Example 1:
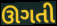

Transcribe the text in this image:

ઊગતી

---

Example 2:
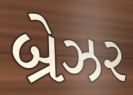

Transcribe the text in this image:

બ્રેઝર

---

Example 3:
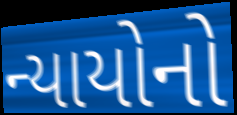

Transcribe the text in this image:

ન્યાયોનો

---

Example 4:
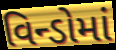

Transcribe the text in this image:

વિન્ડોમાં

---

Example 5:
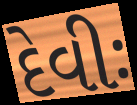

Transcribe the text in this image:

દેવીઃ